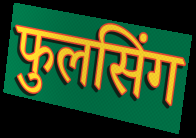
फुलसिंग